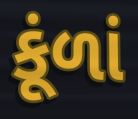
કૂંળાં